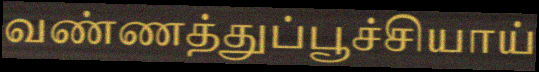
வண்ணத்துப்பூச்சியாய்